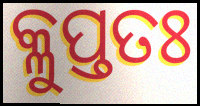
କ୍ଳୁପ୍ତତଃ